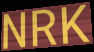
NRK